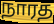
நாரத